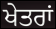
ਖੇਤਰਾਂ